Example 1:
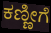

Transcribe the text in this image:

ಕಣ್ಣೀಗೆ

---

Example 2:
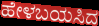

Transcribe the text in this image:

ಹೇಳಬಯಸಿದ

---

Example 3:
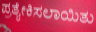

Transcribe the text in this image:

ಪ್ರತ್ಯೇಕಿಸಲಾಯಿತು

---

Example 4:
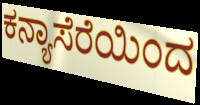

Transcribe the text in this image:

ಕನ್ಯಾಸೆರೆಯಿಂದ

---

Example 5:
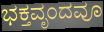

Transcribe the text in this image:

ಭಕ್ತವೃಂದವೂ